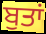
ਬੁਤਾਂ